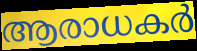
ആരാധകർ